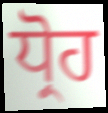
ਧ੍ਰੋਹ